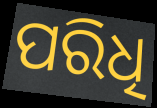
ପରିଧି